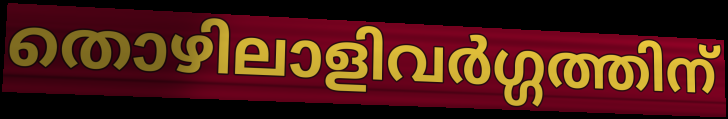
തൊഴിലാളിവർഗ്ഗത്തിന്